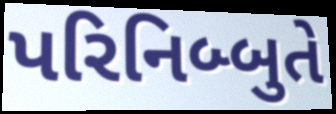
પરિનિબ્બુતે